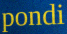
pondi